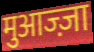
मुआज्ज़ा